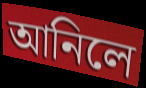
আনিলে